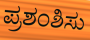
ಪ್ರಶಂಶಿಸು